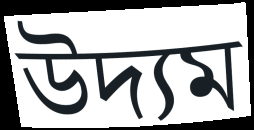
উদ্যম